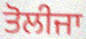
ਤੋਲੀਜਾ